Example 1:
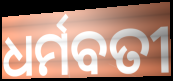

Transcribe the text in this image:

ଧର୍ମବତୀ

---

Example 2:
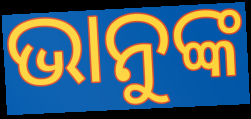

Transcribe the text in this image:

ଭାନୁଙ୍କ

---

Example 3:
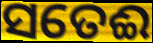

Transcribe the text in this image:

ସତେଈ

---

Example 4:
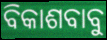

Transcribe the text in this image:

ବିକାଶବାବୁ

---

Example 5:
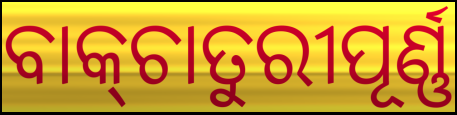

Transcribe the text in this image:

ବାକ୍‌ଚାତୁରୀପୂର୍ଣ୍ଣ